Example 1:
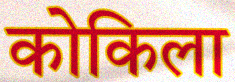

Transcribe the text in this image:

कोकिला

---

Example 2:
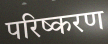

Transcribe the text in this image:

परिष्करण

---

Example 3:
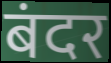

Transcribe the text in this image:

बंदर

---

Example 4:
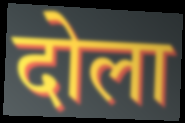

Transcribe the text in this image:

दोला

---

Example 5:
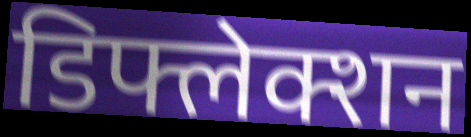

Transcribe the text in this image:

डिफ्लेक्शन